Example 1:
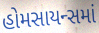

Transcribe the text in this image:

હોમસાયન્સમાં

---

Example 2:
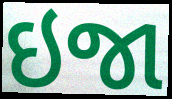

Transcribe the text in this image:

ઇજા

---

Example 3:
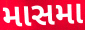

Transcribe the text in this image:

માસમા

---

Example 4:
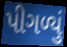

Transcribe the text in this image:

પીગળ્યું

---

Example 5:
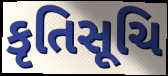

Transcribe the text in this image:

કૃતિસૂચિ